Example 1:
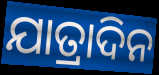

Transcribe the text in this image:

ଯାତ୍ରାଦିନ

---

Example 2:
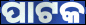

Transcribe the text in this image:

ପାଟକ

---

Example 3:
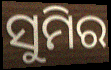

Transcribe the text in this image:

ସୁମିର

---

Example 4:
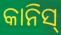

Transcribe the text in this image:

କାନିସ୍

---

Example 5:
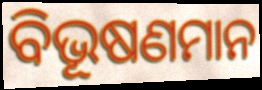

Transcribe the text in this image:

ବିଭୂଷଣମାନ